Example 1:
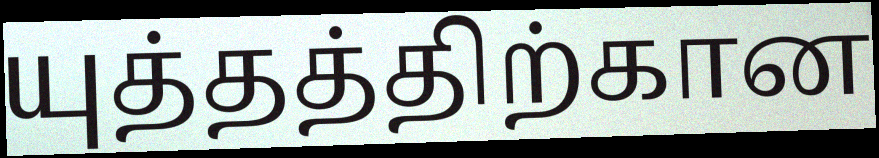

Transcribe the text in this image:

யுத்தத்திற்கான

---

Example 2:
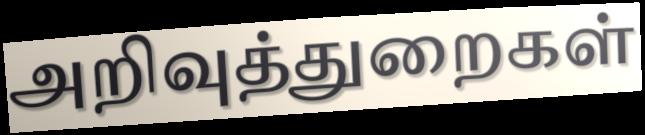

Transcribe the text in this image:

அறிவுத்துறைகள்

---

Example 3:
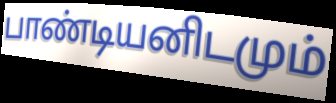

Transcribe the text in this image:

பாண்டியனிடமும்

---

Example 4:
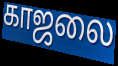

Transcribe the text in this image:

காஜலை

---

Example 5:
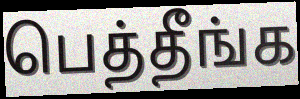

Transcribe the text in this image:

பெத்தீங்க